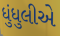
ધુંધુલીએ